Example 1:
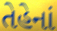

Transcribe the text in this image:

તેહેનાં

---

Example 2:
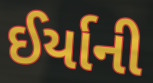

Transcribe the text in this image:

ઈર્યાની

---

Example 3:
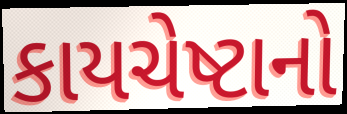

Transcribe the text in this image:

કાયચેષ્ટાનો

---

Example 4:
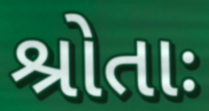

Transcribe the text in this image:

શ્રોતાઃ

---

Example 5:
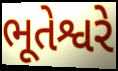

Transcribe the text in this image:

ભૂતેશ્વરે